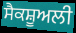
ਸੈਕਸ਼ੂਅਲੀ